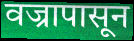
वज्रापासून